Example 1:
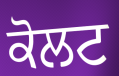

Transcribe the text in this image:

ਕੋਲਟ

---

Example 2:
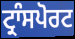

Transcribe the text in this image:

ਟ੍ਰਾੰਸਪੋਰਟ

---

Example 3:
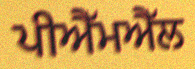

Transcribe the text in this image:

ਪੀਐੱਮਐੱਲ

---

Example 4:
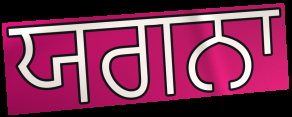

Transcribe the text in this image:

ਯਗਨਾ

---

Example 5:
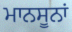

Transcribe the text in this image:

ਮਾਨਸੂਨਾਂ